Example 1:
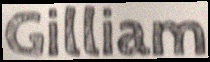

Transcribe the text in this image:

Gilliam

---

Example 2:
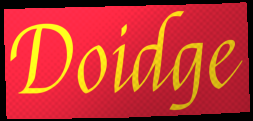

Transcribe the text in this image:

Doidge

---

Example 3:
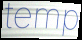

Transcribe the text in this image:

temp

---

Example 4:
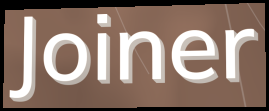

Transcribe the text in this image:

Joiner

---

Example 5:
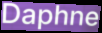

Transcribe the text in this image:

Daphne